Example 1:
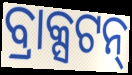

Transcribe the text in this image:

ବ୍ରାକ୍ସଟନ୍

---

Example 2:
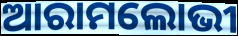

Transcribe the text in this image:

ଆରାମଲୋଭୀ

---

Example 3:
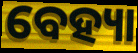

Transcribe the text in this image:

ବେହ୍ୟା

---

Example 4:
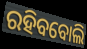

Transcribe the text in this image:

ରହିବବୋଲି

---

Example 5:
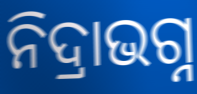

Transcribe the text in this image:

ନିଦ୍ରାଭଗ୍ନ